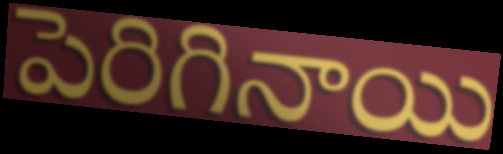
పెరిగినాయి